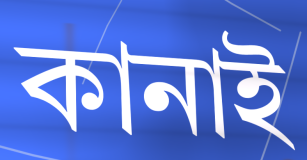
কানাই